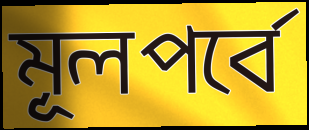
মূলপর্বে